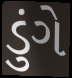
ડુંગે